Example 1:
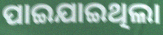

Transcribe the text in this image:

ପାଇଯାଇଥିଲା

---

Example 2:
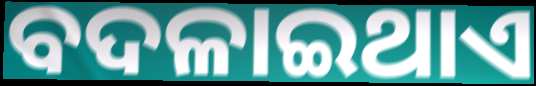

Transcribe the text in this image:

ବଦଳାଇଥାଏ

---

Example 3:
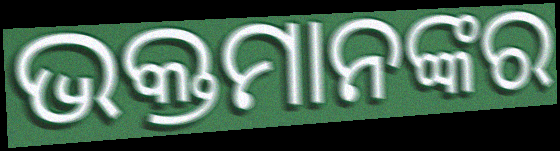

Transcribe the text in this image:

ଭକ୍ତମାନଙ୍କର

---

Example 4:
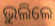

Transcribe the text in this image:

ଭୁଲିଲେ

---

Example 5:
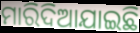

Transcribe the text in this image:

ମାରିଦିଆଯାଇଛି